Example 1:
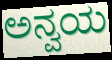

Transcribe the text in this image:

ಅನ್ವಯ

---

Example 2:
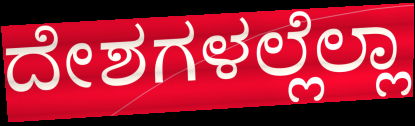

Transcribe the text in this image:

ದೇಶಗಳಲ್ಲೆಲ್ಲಾ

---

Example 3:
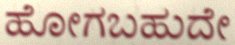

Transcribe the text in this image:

ಹೋಗಬಹುದೇ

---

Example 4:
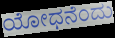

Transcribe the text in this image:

ಯೋಧನೆಂದು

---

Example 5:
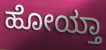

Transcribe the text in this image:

ಹೋಯ್ತಾ